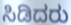
ಸಿಡಿದರು